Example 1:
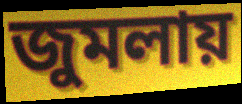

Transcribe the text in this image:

জুমলায়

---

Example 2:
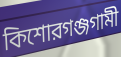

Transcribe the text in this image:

কিশোরগঞ্জগামী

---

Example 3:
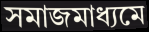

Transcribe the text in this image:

সমাজমাধ্যমে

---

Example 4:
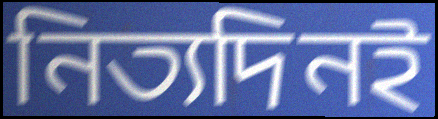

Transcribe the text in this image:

নিত্যদিনই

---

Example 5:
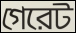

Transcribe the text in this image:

গেরেট